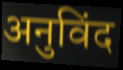
अनुविंद